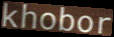
khobor